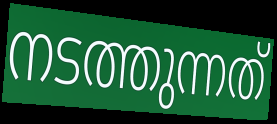
നടത്തുന്നത്